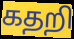
கதறி